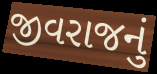
જીવરાજનું